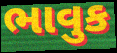
ભાવુક